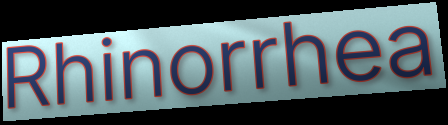
Rhinorrhea